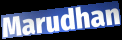
Marudhan